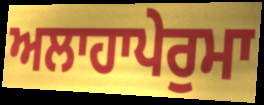
ਅਲਾਹਾਪੇਰੁਮਾ